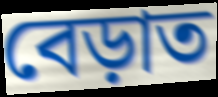
বেড়াত